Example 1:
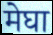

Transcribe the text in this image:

मेघा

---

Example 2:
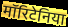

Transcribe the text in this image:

मॉरिटेनिया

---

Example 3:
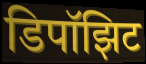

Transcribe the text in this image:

डिपॉझिट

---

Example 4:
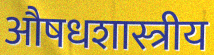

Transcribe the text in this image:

औषधशास्त्रीय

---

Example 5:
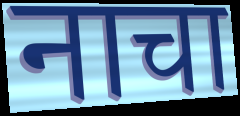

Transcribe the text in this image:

नाचा